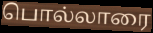
பொல்லாரை